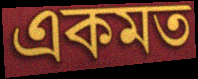
একমত